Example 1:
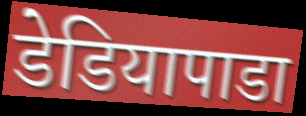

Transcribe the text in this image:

डेडियापाडा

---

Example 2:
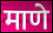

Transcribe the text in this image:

माणे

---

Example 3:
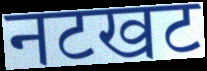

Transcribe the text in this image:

नटखट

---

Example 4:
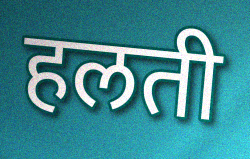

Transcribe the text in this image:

हलती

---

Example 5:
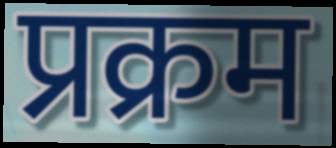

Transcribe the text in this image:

प्रक्रम